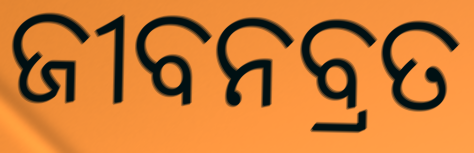
ଜୀବନବ୍ରତ